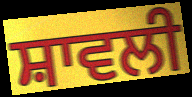
ਸ਼ਾਵਲੀ